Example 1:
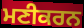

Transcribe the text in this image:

ਮਣੀਕਰਨ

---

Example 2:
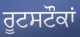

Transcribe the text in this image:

ਰੂਟਸਟੌਕਾਂ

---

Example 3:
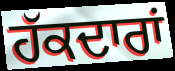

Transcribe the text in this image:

ਹੱਕਦਾਰਾਂ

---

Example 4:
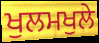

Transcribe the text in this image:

ਖੁਲਮਖੁਲੇ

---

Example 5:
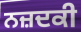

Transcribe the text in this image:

ਨਜ਼ਦਕੀ